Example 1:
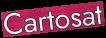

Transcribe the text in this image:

Cartosat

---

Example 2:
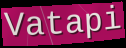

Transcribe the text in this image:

Vatapi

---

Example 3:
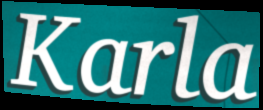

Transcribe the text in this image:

Karla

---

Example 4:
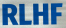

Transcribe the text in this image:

RLHF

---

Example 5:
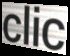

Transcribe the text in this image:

clic